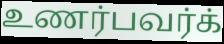
உணர்பவர்க்